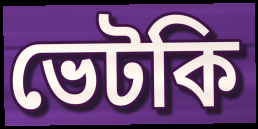
ভেটকি